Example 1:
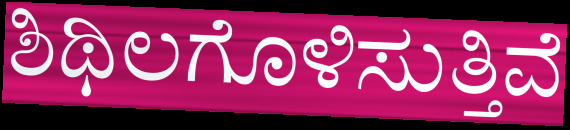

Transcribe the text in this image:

ಶಿಥಿಲಗೊಳಿಸುತ್ತಿವೆ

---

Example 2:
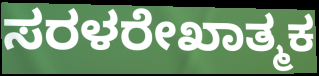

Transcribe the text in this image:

ಸರಳರೇಖಾತ್ಮಕ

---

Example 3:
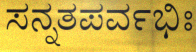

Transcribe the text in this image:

ಸನ್ನತಪರ್ವಭಿಃ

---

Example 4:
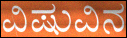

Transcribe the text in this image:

ವಿಷುವಿನ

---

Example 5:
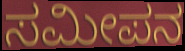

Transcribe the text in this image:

ಸಮೀಪನ